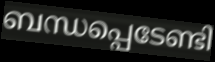
ബന്ധപ്പെടേണ്ടി